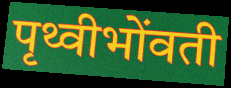
पृथ्वीभोंवती